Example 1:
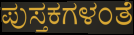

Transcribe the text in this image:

ಪುಸ್ತಕಗಳಂತೆ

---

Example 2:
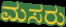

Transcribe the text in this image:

ಮಸರು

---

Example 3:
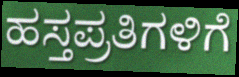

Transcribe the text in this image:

ಹಸ್ತಪ್ರತಿಗಳಿಗೆ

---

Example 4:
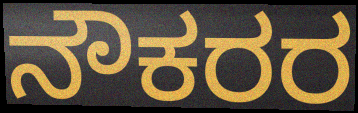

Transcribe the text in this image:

ನೌಕರರ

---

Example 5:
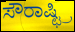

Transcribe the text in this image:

ಸೌರಾಷ್ಟ್ರಿ